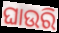
ଘାଉରି